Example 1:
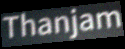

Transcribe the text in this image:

Thanjam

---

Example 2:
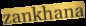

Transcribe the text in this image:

zankhana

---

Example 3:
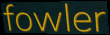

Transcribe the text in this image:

fowler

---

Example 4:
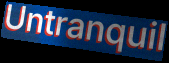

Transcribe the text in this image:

Untranquil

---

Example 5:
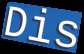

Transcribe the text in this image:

Dis